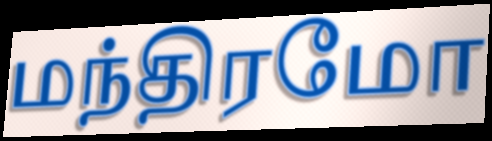
மந்திரமோ